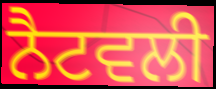
ਨੈਟਵਲੀ